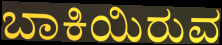
ಬಾಕಿಯಿರುವ